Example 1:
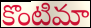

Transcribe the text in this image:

కొంటిమా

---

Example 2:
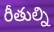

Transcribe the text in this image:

రీతుల్ని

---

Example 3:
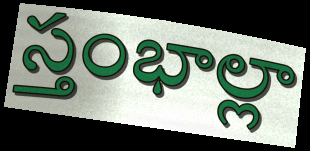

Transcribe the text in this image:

స్తంభాల్లా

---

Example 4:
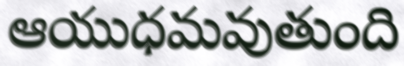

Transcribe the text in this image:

ఆయుధమవుతుంది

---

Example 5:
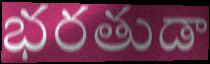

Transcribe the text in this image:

భరతుడా